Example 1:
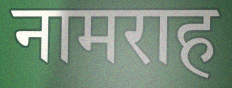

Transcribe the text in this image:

नामराह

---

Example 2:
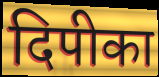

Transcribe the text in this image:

दिपीका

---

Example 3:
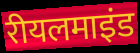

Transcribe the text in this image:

रीयलमाइंड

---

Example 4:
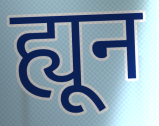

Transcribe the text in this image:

ह्यून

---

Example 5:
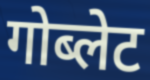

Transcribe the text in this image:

गोब्लेट